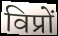
विप्रों